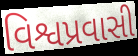
વિશ્વપ્રવાસી